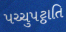
પચ્ચુપટ્ઠાતિ